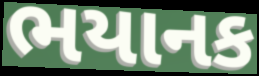
ભયાનક